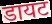
डायट